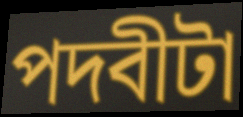
পদবীটা